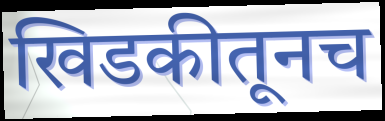
खिडकीतूनच